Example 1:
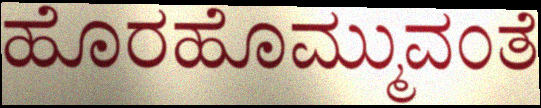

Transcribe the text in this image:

ಹೊರಹೊಮ್ಮುವಂತೆ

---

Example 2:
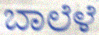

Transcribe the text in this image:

ಬಾಲೆಳೆ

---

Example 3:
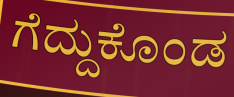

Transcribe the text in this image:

ಗೆದ್ದುಕೊಂಡ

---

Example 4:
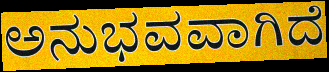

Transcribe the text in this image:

ಅನುಭವವಾಗಿದೆ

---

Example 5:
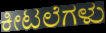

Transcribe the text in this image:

ಕೀಟಲೆಗಳು